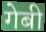
गेबी